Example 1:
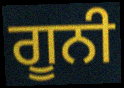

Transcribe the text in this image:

ਗੂਨੀ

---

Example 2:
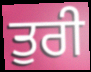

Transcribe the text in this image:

ਤੁਰੀ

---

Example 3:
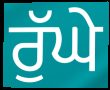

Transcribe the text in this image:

ਰੁੱਘੇ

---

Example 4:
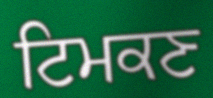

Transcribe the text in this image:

ਟਿਮਕਣ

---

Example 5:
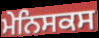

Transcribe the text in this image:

ਮੇਨਿਸਕਸ